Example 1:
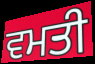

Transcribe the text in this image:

ਵਮਤੀ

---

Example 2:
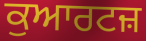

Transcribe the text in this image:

ਕੁਆਰਟਜ਼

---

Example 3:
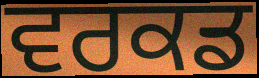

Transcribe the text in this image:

ਵਰਕਡ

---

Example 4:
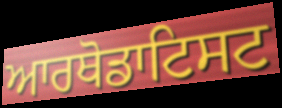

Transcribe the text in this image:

ਆਰਥੋਡਾਟਿਸਟ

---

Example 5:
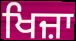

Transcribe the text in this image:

ਖਿਜ਼ਾ